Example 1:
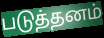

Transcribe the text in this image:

படுத்தனம்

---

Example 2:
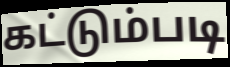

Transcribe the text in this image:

கட்டும்படி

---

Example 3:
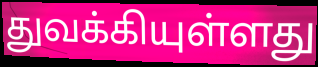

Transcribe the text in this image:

துவக்கியுள்ளது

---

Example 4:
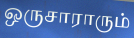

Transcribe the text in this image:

ஒருசாராரும்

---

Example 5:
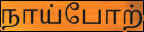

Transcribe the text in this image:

நாய்போற்